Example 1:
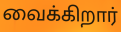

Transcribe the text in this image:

வைக்கிறார்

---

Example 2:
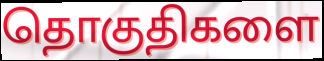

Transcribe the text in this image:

தொகுதிகளை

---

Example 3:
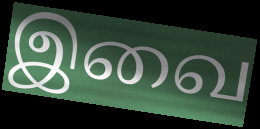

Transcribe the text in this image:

இவை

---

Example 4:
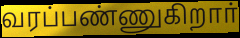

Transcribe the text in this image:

வரப்பண்ணுகிறார்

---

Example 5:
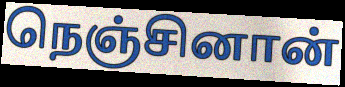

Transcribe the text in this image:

நெஞ்சினான்